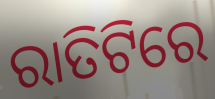
ରାତିଟିରେ